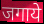
जगाये